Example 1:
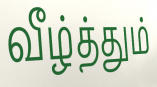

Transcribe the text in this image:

வீழ்த்தும்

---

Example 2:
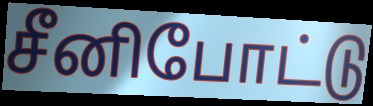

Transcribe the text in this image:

சீனிபோட்டு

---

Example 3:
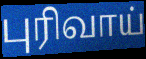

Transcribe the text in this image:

புரிவாய்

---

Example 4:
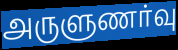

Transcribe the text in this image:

அருளுணர்வு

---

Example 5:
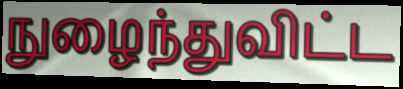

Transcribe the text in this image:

நுழைந்துவிட்ட